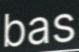
bas